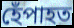
হেঁপাহত